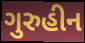
ગુરુહીન